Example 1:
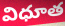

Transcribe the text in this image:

విధూత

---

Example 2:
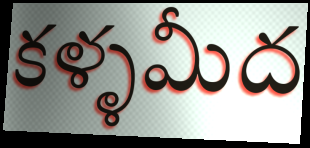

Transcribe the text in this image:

కళ్ళమీద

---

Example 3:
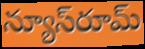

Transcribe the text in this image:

న్యూస్‌రూమ్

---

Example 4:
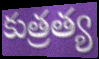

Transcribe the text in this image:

కుత్రత్య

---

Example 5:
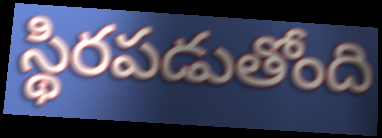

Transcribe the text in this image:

స్థిరపడుతోంది